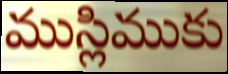
ముస్లిముకు